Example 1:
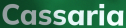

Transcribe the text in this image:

Cassaria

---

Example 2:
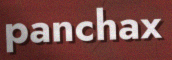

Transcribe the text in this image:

panchax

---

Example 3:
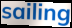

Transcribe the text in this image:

sailing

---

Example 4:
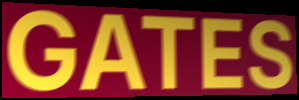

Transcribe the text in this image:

GATES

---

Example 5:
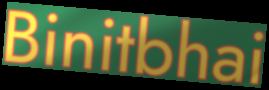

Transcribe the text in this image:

Binitbhai